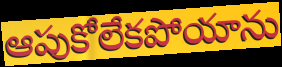
ఆపుకోలేకపోయాను